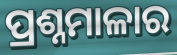
ପ୍ରଶ୍ନମାଳାର